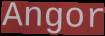
Angor